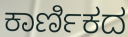
ಕಾರ್ಣಿಕದ